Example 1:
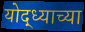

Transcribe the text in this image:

योद्ध्याच्या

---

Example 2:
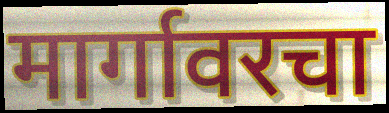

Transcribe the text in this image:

मार्गावरचा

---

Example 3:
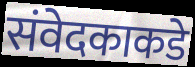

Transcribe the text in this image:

संवेदकाकडे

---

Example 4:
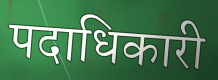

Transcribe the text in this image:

पदाधिकारी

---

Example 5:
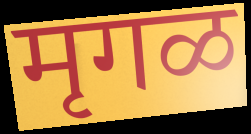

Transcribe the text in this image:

मृगळ